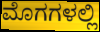
ಮೊಗಗಳಲ್ಲಿ